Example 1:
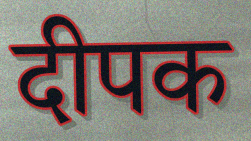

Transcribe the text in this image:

दीपक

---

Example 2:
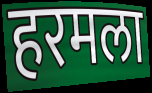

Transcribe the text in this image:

हरमला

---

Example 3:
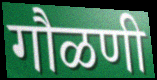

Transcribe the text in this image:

गौळणी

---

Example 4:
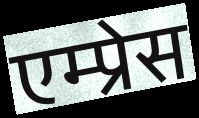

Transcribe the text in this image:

एम्प्रेस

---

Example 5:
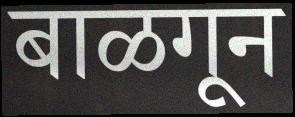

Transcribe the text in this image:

बाळगून